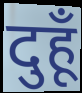
दुहूँ